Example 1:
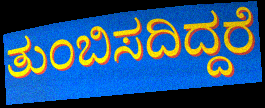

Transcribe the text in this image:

ತುಂಬಿಸದಿದ್ದರೆ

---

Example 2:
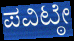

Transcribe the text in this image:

ಪವಿಟ್ಠೇ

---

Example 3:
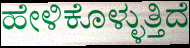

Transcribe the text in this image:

ಹೇಳಿಕೊಳ್ಳುತ್ತಿದೆ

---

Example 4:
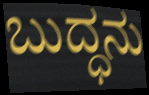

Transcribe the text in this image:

ಬುದ್ಧನು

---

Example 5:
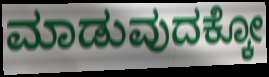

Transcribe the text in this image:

ಮಾಡುವುದಕ್ಕೋ